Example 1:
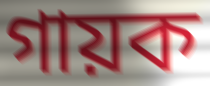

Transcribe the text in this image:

গায়ক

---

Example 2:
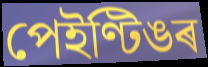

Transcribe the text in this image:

পেইণ্টিঙৰ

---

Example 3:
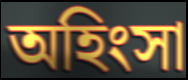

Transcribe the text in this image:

অহিংসা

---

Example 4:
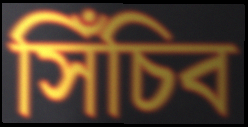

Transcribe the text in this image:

সিঁচিব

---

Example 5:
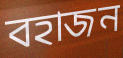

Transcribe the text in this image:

বহাজন